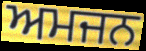
ਅਮਜਨ